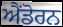
ਐਂਡੋਰਨ